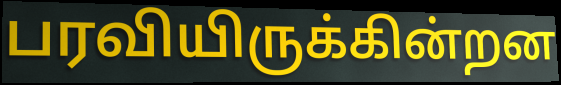
பரவியிருக்கின்றன